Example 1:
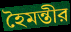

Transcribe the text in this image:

হৈমন্তীর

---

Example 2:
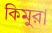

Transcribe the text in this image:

কিমুরা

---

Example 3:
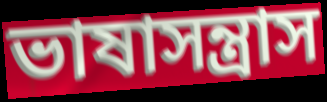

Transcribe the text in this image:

ভাষাসন্ত্রাস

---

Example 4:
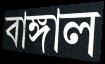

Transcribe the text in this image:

বাঙ্গাল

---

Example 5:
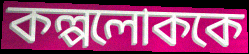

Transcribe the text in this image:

কল্পলোককে